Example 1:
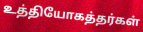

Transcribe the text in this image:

உத்தியோகத்தர்கள்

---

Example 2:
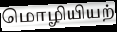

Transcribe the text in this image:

மொழியியற்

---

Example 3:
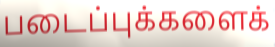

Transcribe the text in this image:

படைப்புக்களைக்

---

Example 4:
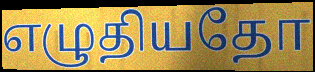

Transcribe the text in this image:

எழுதியதோ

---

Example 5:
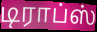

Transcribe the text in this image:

டிராப்ஸ்